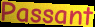
Passant